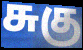
சுகு